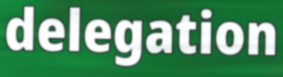
delegation